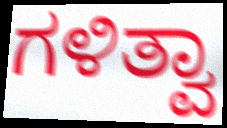
ಗಳಿತ್ವಾ